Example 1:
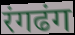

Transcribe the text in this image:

रंगढंग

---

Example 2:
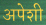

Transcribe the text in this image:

अपेशी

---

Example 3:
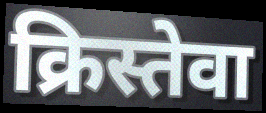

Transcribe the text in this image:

क्रिस्तेवा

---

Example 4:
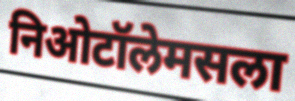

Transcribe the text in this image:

निओटॉलेमसला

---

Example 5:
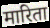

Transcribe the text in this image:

मारिता